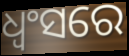
ଧ୍ୱଂସରେ